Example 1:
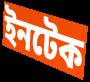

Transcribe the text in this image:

ইনটেক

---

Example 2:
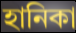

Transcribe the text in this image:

হানিকা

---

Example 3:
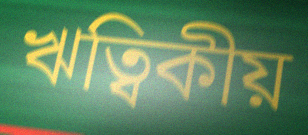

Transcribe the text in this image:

ঋত্বিকীয়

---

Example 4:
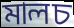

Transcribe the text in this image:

মালচ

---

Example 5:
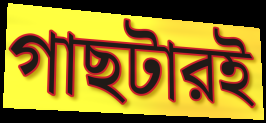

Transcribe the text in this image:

গাছটারই